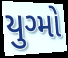
યુગ્મો